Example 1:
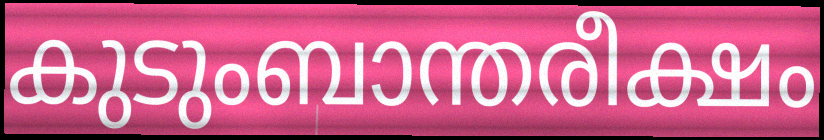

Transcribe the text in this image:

കുടുംബാന്തരീക്ഷം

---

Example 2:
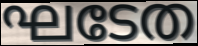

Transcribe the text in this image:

ഘടേത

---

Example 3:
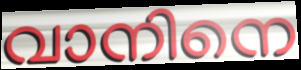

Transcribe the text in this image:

വാനിനെ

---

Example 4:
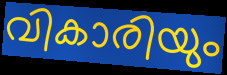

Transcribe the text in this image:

വികാരിയും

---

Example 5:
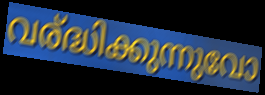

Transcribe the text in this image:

വര്ദ്ധിക്കുന്നുവോ